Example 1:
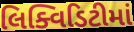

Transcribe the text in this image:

લિક્વિડિટીમાં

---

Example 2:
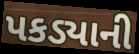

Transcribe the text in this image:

પકડ્યાની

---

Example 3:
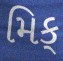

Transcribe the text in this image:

મિક્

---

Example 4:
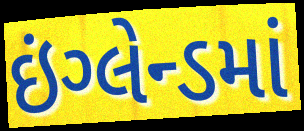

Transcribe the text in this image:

ઇંગ્લેન્ડમાં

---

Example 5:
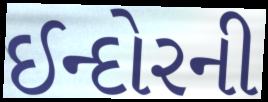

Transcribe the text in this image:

ઈન્દોરની